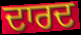
ਦਾਰਦ